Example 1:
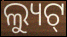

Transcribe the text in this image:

ଲ୍ୟୁଟ୍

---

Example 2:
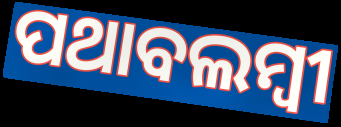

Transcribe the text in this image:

ପଥାବଲମ୍ବୀ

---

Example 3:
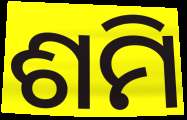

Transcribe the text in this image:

ଶମି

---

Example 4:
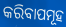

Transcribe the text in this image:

କରିବାପମୂହ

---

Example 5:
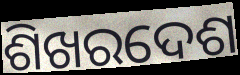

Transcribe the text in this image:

ଶିଖରଦେଶ